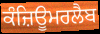
ਕੰਜ਼ਿਊਮਰਲੈਬ